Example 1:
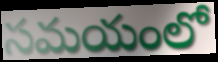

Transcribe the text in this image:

సమయంలో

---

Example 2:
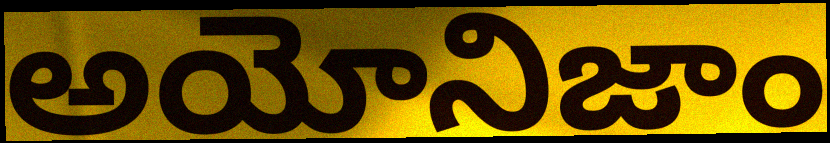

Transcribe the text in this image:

అయోనిజాం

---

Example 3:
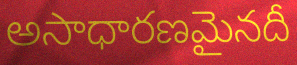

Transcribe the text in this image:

అసాధారణమైనదీ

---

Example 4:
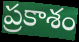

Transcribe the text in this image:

ప్రకాశం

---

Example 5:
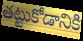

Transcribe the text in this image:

తట్టుకోడానికి